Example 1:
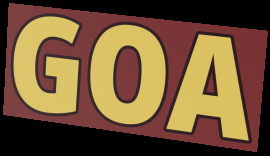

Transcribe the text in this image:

GOA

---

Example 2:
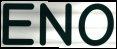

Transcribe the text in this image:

ENO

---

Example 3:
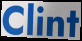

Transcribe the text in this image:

Clint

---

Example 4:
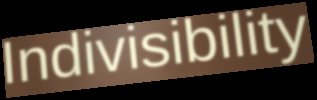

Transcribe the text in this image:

Indivisibility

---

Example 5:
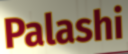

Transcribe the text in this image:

Palashi